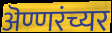
ऄण्णरंच्यर